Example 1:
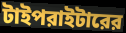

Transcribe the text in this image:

টাইপরাইটারের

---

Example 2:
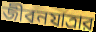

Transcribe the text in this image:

জীবনযাত্রার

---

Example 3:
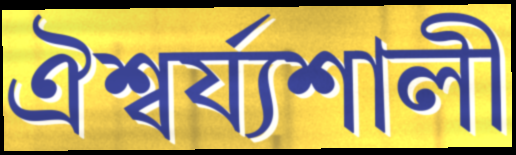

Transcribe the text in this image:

ঐশ্বর্য্যশালী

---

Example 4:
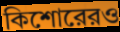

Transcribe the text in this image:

কিশোরেরও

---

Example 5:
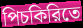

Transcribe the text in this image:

পিচকিরিতে